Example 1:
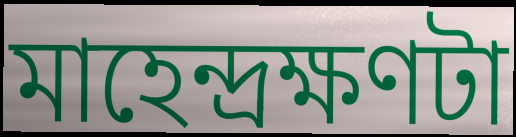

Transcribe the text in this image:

মাহেন্দ্রক্ষণটা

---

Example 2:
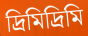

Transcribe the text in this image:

দ্রিমিদ্রিমি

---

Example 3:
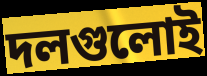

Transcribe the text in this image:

দলগুলোই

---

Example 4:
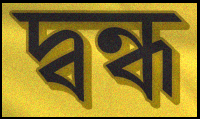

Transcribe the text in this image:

দ্বন্ধ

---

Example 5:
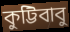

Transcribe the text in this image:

কুট্টিবাবু